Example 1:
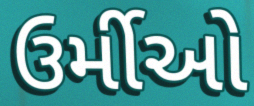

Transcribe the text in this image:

ઉર્મીઓ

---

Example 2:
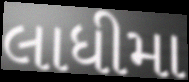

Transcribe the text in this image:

લાધીમા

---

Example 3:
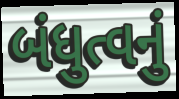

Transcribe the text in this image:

બંધુત્વનું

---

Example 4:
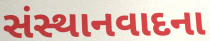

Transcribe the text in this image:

સંસ્થાનવાદના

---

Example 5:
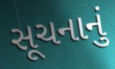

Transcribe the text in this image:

સૂચનાનું